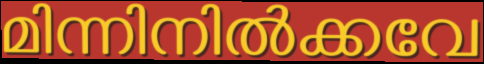
മിന്നിനിൽക്കവേ